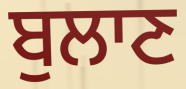
ਬੁਲਾਣ